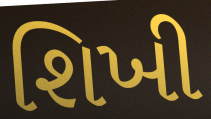
શિખી